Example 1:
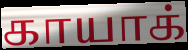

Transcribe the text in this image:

காயாக்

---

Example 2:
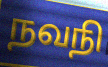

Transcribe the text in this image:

நவநி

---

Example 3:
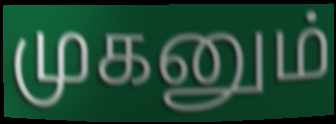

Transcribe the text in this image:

முகனும்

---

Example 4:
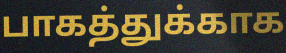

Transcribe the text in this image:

பாகத்துக்காக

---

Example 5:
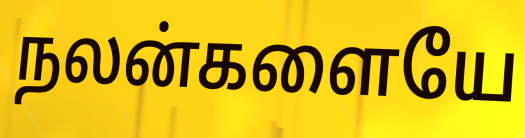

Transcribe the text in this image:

நலன்களையே